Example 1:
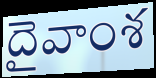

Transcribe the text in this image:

దైవాంశ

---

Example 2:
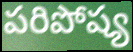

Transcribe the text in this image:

పరిపోష్య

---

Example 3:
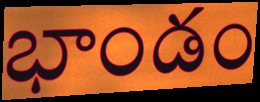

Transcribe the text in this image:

భాండం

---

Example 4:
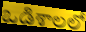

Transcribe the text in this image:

ఒడిశాలలో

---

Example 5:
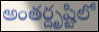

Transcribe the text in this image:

అంతర్దృష్టిలో